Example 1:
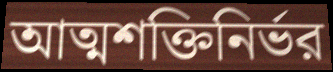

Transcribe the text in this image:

আত্মশক্তিনির্ভর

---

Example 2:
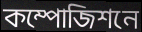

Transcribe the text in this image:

কম্পোজিশনে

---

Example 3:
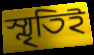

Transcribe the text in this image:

স্মৃতিই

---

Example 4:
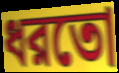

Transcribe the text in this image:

ধরতো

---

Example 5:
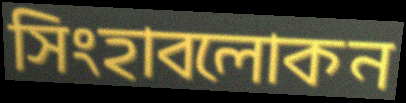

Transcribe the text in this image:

সিংহাবলোকন